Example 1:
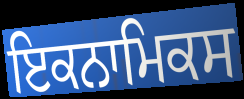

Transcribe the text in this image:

ਇਕਨਾਮਿਕਸ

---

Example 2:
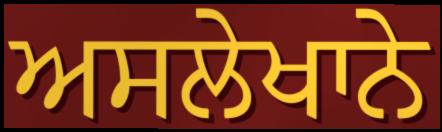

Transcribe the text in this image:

ਅਸਲੇਖਾਨੇ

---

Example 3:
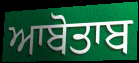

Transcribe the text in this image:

ਆਬੋਤਾਬ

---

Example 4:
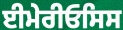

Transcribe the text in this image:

ਈਮੇਰੀਓਸਿਸ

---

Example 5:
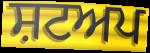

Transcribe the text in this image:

ਸ਼ਟਅਪ